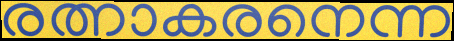
രത്നാകരനെന്ന